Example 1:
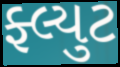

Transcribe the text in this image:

ફ્લ્યુટ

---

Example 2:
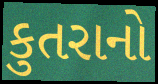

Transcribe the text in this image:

કુતરાનો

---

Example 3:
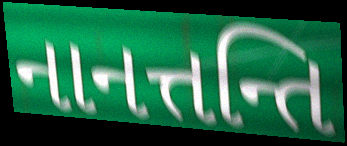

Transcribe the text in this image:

નાનત્તન્તિ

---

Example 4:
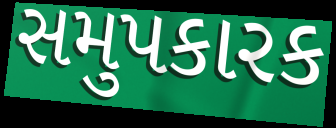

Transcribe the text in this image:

સમુપકારક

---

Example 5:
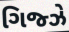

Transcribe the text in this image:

ગિજ્ઝે